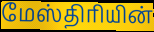
மேஸ்திரியின்